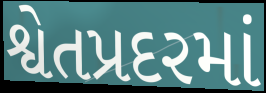
શ્વેતપ્રદરમાં